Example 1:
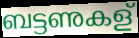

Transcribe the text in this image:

ബട്ടണുകള്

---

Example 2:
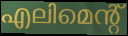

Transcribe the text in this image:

എലിമെന്റ്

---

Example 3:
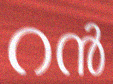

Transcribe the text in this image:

റൻ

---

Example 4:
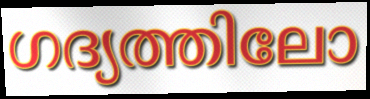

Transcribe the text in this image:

ഗദ്യത്തിലോ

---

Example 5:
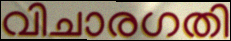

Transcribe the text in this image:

വിചാരഗതി